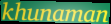
khunaman